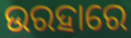
ଉରହାରେ